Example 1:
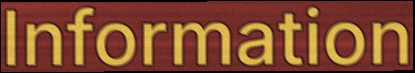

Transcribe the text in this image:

Information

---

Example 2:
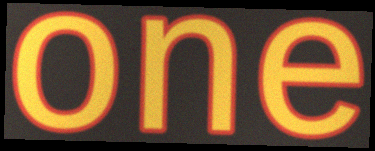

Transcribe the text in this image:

one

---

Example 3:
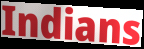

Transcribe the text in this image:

Indians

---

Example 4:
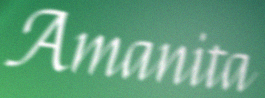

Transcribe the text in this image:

Amanita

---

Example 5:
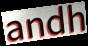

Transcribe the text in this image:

andh